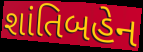
શાંતિબહેન